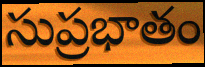
సుప్రభాతం